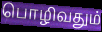
பொழிவதும்